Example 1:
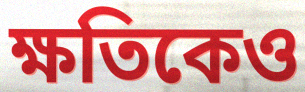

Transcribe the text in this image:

ক্ষতিকেও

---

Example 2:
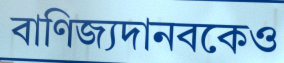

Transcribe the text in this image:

বাণিজ্যদানবকেও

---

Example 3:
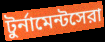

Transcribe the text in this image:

টুর্নামেন্টসেরা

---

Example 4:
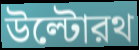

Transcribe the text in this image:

উল্টোরথ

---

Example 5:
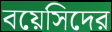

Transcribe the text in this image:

বয়েসিদের